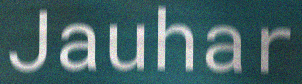
Jauhar